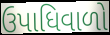
ઉપાધિવાળો